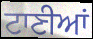
ਟਾਣੀਆਂ